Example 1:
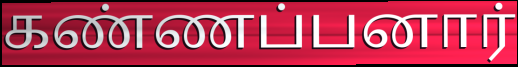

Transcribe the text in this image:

கண்ணப்பனார்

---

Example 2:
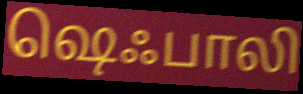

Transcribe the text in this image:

ஷெஃபாலி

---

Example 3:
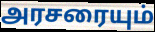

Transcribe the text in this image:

அரசரையும்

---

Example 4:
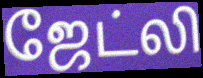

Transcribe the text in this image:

ஜேட்லி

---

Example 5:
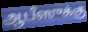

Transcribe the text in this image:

ஆபீஸுக்கு